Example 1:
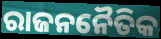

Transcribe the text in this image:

ରାଜନନୈତିକ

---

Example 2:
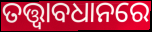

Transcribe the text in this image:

ତତ୍ତ୍ବାବଧାନରେ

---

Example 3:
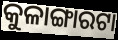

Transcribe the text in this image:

କୁଳାଙ୍ଗାରଟା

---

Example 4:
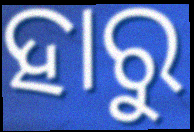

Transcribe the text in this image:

ହାରୁ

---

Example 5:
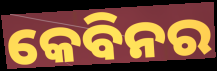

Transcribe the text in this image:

କେବିନର